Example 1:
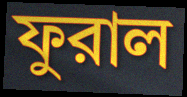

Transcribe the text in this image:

ফুরাল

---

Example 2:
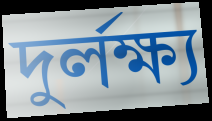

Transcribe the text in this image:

দুর্লক্ষ্য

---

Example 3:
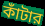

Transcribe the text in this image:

কাঁটার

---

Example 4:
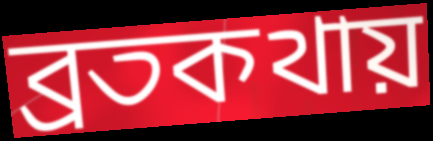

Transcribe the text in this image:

ব্রতকথায়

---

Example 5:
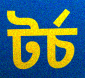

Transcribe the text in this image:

টর্চ